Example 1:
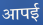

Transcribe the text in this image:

आपई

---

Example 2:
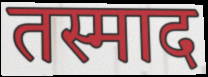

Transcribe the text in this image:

तस्माद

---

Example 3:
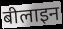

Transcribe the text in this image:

बीलाइन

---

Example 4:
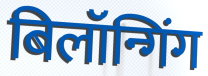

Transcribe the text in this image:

बिलॉन्गिंग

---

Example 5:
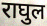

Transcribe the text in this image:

राघुल